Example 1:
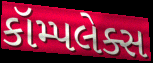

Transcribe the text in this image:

કૉમ્પલેક્સ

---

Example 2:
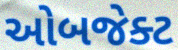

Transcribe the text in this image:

ઓબજેક્ટ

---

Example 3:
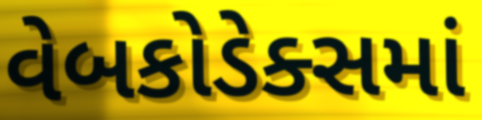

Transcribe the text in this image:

વેબકોડેક્સમાં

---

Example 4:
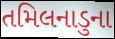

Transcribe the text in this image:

તમિલનાડુના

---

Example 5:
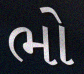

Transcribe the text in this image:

ભો